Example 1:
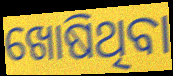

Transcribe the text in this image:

ଖୋଷିଥିବା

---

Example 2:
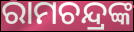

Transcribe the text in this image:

ରାମଚନ୍ଦ୍ରଙ୍କ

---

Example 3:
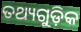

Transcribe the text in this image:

ତଥ୍ୟଗୁଡ଼ିକ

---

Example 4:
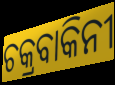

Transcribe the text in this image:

ଚକ୍ରବାକିନୀ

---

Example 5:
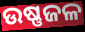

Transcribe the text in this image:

ଉଷ୍ଣଜଳ